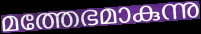
മത്തേഭമാകുന്നു